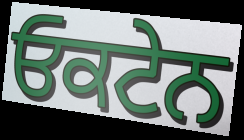
ਓਕਟੇਨ